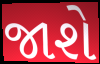
જાશે